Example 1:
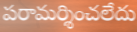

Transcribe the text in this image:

పరామర్శించలేదు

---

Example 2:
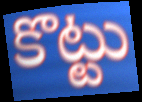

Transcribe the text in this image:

కొట్టు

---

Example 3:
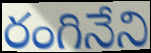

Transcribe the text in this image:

రంగినేని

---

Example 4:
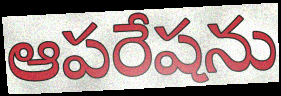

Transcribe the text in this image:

ఆపరేషను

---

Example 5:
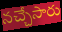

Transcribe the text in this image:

నచ్చేసారు